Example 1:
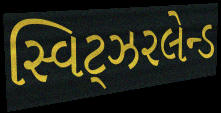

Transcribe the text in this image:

સ્વિટ્ઝરલેન્ડ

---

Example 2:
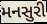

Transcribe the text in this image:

મનસુરી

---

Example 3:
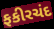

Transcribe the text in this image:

ફકીરચંદ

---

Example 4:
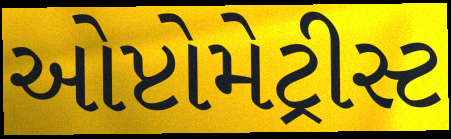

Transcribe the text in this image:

ઓપ્ટોમેટ્રીસ્ટ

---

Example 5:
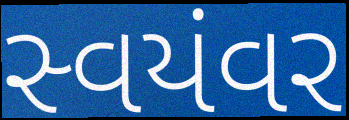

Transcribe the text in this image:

સ્વયંવર